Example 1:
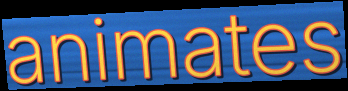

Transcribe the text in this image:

animates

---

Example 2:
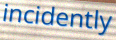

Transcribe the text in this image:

incidently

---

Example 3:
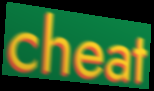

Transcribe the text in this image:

cheat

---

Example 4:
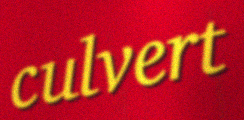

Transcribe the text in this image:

culvert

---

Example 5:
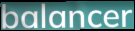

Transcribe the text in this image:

balancer